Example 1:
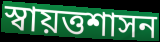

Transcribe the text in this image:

স্বায়ত্তশাসন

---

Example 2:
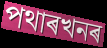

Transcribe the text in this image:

পথাৰখনৰ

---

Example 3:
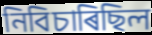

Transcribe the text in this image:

নিবিচাৰিছিল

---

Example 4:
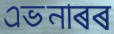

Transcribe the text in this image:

এভনাৰৰ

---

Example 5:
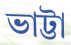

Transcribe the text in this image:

ভাট্টা